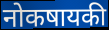
नोकषायकी